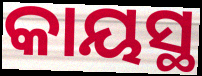
କାୟସ୍ଥ